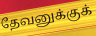
தேவனுக்குக்